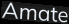
Amate